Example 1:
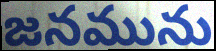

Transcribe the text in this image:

జనమును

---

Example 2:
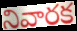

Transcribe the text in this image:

నివారక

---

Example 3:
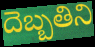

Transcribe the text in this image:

దెబ్బతిని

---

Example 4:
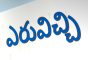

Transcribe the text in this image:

ఎరువిచ్చి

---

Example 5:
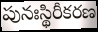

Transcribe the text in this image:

పునఃస్థిరీకరణ